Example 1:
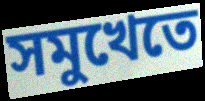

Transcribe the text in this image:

সমুখেতে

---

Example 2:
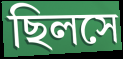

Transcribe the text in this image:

ছিলসে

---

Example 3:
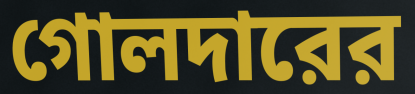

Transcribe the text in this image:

গোলদারের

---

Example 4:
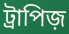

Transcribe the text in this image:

ট্রাপিজ়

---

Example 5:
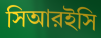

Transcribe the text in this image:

সিআরইসি